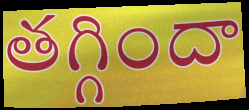
తగ్గిందా